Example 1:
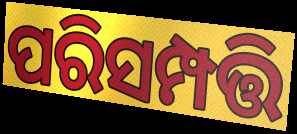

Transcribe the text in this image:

ପରିସମ୍ପତ୍ତି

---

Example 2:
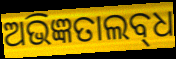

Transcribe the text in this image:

ଅଭିଜ୍ଞତାଲବ୍‌ଧ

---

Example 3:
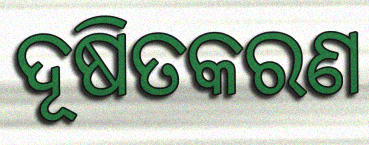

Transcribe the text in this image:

ଦୂଷିତକରଣ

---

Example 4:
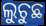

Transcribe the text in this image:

ଲୁଚୁଛ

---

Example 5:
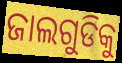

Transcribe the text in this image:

ଜାଲଗୁଡିକୁ